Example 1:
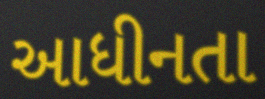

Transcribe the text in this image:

આધીનતા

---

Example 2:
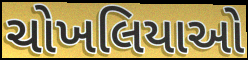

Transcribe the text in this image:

ચોખલિયાઓ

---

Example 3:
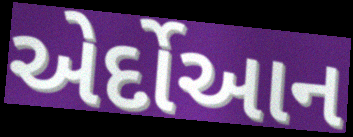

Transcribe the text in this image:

એર્દોઆન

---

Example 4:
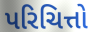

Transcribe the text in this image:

પરિચિત્તો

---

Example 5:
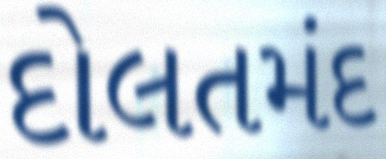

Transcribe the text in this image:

દોલતમંદ